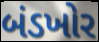
બંડખોર